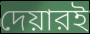
দেয়ারই